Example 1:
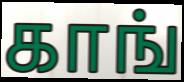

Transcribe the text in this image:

காங்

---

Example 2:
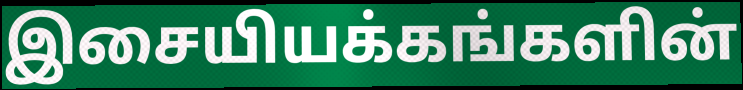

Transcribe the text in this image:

இசையியக்கங்களின்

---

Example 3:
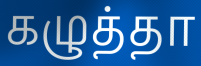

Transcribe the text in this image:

கழுத்தா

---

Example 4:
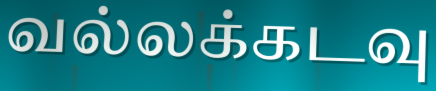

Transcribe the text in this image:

வல்லக்கடவு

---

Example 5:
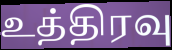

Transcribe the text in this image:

உத்திரவு